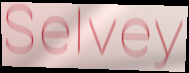
Selvey